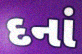
દનાં